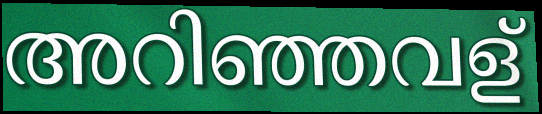
അറിഞ്ഞവള്